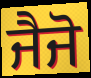
ਜੈਜੋ